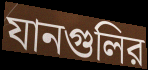
যানগুলির